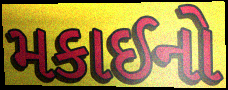
મકાઈનો